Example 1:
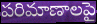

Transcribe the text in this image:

పరిమాణాలపై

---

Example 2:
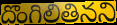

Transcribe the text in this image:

దొంగిలితినని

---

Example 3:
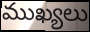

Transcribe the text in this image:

ముఖ్యలు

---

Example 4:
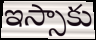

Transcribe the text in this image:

ఇస్సాకు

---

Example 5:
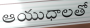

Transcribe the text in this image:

ఆయుధాలతో